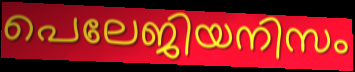
പെലേജിയനിസം